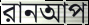
রানআপ